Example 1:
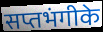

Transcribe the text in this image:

सप्तभंगीके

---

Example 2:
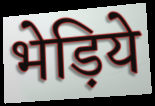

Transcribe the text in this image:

भेड़िये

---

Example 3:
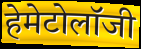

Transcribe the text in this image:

हेमेटोलॉजी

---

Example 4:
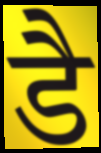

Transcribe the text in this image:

डै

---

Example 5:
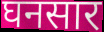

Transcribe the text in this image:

घनसार